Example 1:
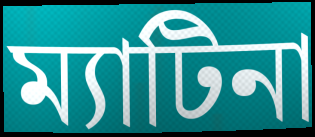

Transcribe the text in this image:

ম্যাটিনা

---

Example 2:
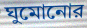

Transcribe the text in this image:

ঘুমোনোর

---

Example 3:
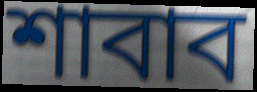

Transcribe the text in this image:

শাবাব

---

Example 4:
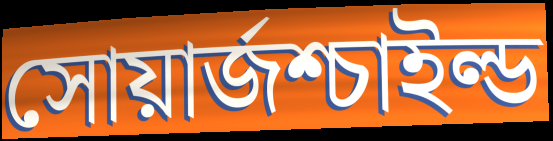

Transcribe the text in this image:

সোয়ার্জশ্চাইল্ড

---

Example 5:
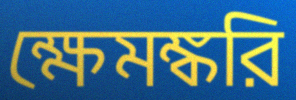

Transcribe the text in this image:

ক্ষেমঙ্করি